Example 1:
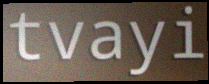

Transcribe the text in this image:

tvayi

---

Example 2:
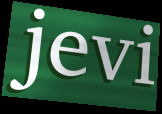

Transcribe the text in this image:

jevi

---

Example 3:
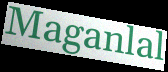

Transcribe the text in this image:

Maganlal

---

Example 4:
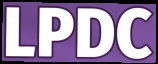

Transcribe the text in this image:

LPDC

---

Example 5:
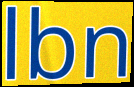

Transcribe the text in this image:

lbn